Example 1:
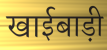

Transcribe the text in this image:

खाईबाड़ी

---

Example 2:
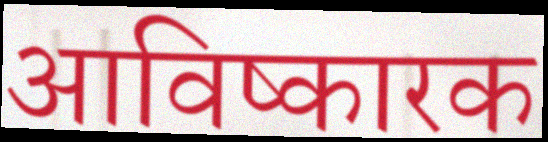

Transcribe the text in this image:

आविष्कारक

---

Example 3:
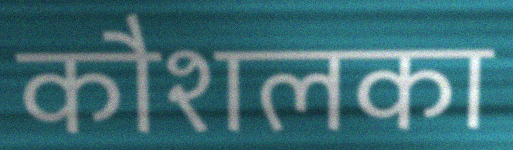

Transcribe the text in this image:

कौशलका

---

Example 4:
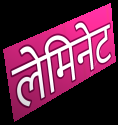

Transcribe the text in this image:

लेमिनेट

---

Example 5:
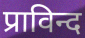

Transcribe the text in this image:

प्राविन्द